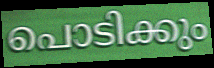
പൊടിക്കും